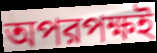
অপরপক্ষই